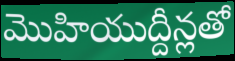
మొహియుద్దీన్లతో